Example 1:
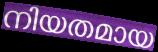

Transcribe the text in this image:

നിയതമായ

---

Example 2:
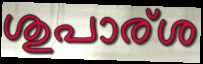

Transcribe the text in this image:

ശുപാര്ശ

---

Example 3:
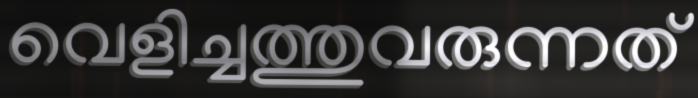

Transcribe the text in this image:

വെളിച്ചത്തുവരുന്നത്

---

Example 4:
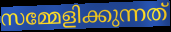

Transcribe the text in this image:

സമ്മേളിക്കുന്നത്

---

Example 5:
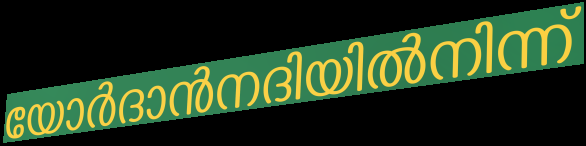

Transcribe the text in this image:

യോർദാൻനദിയിൽനിന്ന്